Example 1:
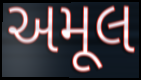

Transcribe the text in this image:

અમૂલ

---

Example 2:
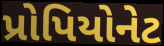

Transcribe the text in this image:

પ્રોપિયોનેટ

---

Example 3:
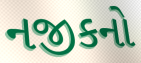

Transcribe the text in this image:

નજીકનો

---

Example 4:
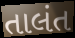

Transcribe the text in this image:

તાલંત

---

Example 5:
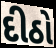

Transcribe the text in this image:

દીઠો